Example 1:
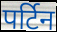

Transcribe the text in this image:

पर्टिन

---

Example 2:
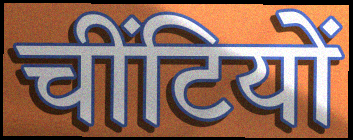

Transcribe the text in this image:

चींटियों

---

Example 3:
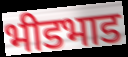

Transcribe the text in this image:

भीडभाड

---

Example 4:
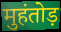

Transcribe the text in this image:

मुहंतोड़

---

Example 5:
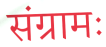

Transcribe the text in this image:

संग्रामः